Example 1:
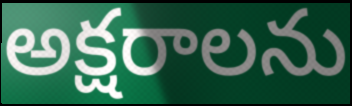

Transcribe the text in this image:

అక్షరాలను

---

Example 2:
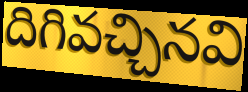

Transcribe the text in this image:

దిగివచ్చినవి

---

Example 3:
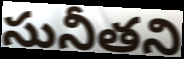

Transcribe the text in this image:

సునీతని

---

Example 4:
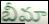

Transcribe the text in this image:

బీమా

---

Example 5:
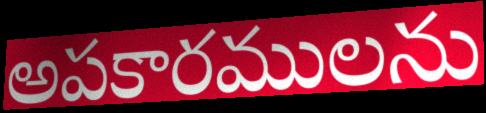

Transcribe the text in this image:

అపకారములను